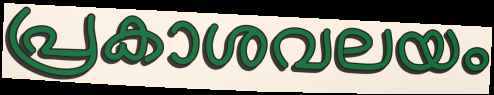
പ്രകാശവലയം